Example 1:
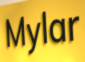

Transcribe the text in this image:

Mylar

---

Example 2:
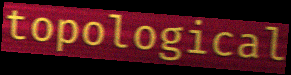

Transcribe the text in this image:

topological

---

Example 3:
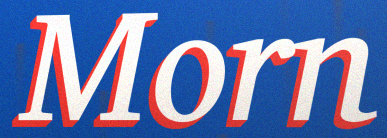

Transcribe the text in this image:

Morn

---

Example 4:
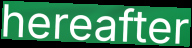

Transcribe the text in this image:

hereafter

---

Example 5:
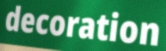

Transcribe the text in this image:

decoration